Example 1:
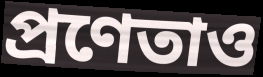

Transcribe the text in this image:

প্রণেতাও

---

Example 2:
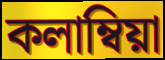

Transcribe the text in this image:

কলাম্বিয়া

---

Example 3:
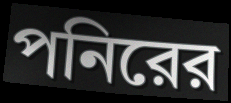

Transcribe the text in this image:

পনিরের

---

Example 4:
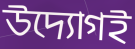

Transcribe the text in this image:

উদ্যোগই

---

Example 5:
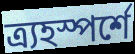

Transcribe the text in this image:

ত্র্যহস্পর্শে